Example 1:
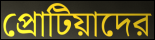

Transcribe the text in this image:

প্রোটিয়াদের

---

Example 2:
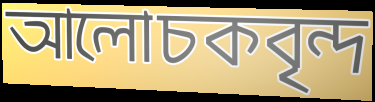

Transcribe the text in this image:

আলোচকবৃন্দ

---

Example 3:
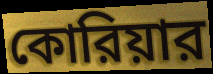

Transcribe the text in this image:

কোরিয়ার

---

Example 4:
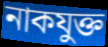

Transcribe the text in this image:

নাকযুক্ত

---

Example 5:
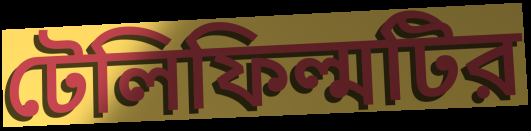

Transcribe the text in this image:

টেলিফিল্মটির